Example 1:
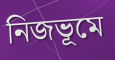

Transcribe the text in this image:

নিজভূমে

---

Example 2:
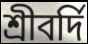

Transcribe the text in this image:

শ্রীবর্দি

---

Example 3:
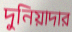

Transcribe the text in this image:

দুনিয়াদার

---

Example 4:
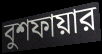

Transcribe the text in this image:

বুশফায়ার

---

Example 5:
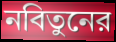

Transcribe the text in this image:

নবিতুনের